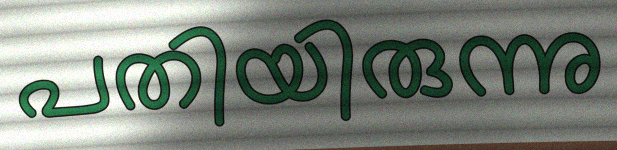
പതിയിരുന്നു